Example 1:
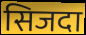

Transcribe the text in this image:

सिजदा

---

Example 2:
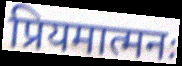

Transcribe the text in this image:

प्रियमात्मनः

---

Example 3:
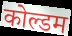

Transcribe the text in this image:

कोल्डम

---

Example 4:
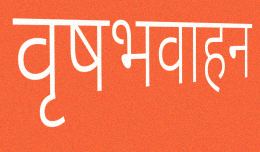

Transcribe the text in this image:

वृषभवाहन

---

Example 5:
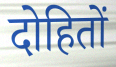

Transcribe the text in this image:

दोहितों